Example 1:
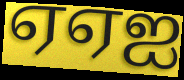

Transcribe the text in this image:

ஏஏஐ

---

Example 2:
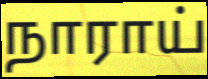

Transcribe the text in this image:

நாராய்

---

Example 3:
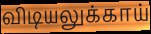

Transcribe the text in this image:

விடியலுக்காய்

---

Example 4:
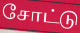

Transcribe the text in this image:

சோட்டு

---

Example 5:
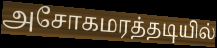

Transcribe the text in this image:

அசோகமரத்தடியில்